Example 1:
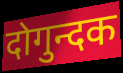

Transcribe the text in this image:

दोगुन्दक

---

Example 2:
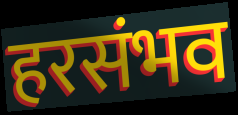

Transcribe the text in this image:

हरसंभव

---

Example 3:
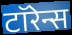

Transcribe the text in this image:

टॉरेन्स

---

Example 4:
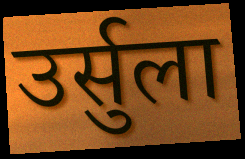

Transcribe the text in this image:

उर्सुला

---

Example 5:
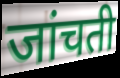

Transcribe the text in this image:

जांचती